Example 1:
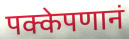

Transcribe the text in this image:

पक्केपणानं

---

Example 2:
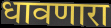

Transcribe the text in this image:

धावणारा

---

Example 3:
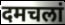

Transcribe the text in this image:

दमचलां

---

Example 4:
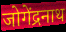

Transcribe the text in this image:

जोगेंद्रनाथ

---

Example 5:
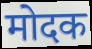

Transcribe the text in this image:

मोदक